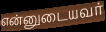
என்னுடையவர்